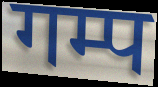
गम्प